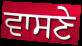
ਵਾਸਣੇ